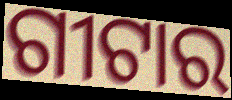
ଗୀଟାର